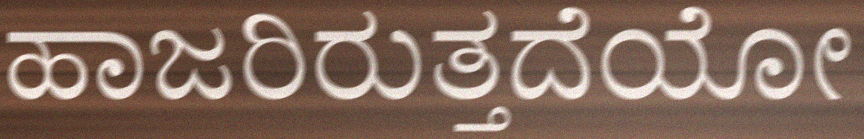
ಹಾಜರಿರುತ್ತದೆಯೋ